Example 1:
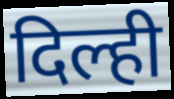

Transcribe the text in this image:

दिल्ही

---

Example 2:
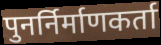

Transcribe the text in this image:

पुनर्निर्माणकर्ता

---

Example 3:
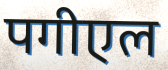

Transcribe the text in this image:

पगीएल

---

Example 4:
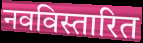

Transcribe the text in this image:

नवविस्तारित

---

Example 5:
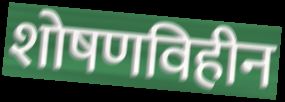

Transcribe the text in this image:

शोषणविहीन